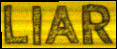
LIAR